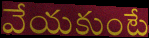
వేయకుంటే